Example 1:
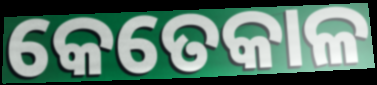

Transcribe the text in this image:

କେତେକାଳ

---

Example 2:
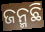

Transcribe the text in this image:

ଜନ୍ମଛି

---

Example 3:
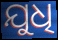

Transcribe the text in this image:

ଯୁଧି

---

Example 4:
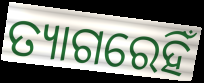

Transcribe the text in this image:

ତ୍ୟାଗରେହିଁ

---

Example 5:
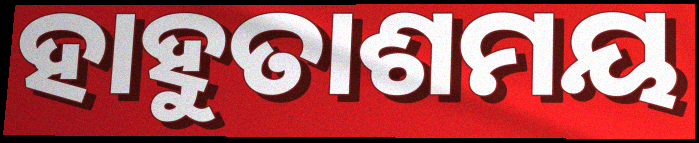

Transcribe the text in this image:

ହାହୁତାଶମୟ